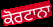
ਕੋਰਟਾਨਾ